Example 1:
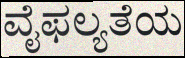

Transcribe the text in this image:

ವೈಫಲ್ಯತೆಯ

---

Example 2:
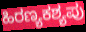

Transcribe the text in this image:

ಹಿರಣ್ಯಕಶ್ಯಪು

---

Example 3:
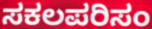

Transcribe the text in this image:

ಸಕಲಪರಿಸಂ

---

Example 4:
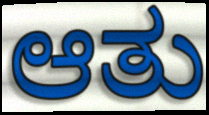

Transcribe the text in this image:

ಆತು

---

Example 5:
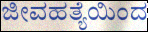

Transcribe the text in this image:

ಜೀವಹತ್ಯೆಯಿಂದ